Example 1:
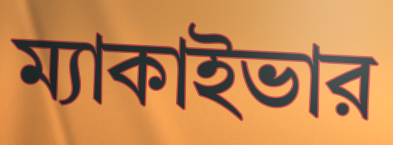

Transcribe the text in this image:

ম্যাকাইভার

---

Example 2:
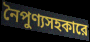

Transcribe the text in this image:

নৈপুণ্যসহকারে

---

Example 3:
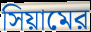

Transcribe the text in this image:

সিয়ামের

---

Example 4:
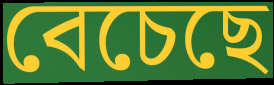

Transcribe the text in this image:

বেচেছে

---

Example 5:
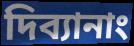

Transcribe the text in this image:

দিব্যানাং